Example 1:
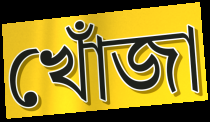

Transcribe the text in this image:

খোঁজা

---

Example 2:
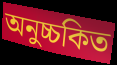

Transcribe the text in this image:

অনুচ্চকিত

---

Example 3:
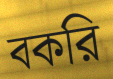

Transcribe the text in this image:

বকরি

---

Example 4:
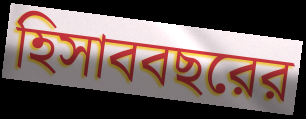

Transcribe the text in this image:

হিসাববছরের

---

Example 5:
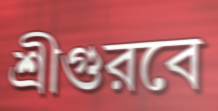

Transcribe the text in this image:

শ্রীগুরবে